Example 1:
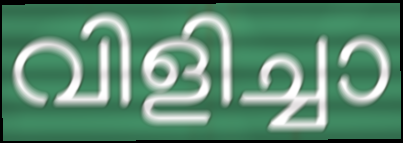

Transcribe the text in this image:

വിളിച്ചാ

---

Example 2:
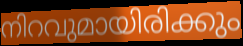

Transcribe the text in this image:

നിറവുമായിരിക്കും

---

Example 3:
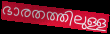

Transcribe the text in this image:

ഭാരതത്തിലുള്ള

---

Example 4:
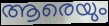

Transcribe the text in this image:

ആരെയും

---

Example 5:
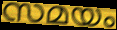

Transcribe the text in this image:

സമയം